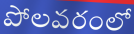
పోలవరంలో